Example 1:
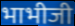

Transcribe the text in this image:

भाभीजी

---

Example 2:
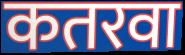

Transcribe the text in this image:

कतरवा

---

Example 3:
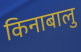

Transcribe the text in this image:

किनाबालु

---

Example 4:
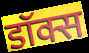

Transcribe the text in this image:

डॉक्स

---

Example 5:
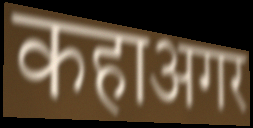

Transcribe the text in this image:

कहाअगर